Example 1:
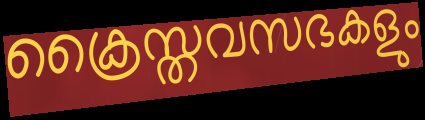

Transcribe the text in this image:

ക്രൈസ്തവസഭകളും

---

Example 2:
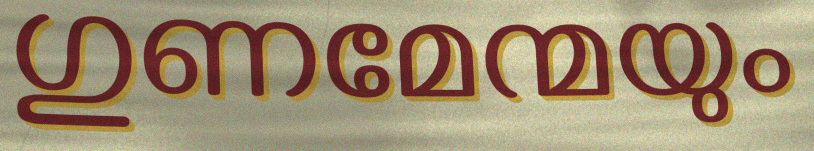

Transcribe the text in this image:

ഗുണമേന്മയും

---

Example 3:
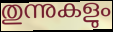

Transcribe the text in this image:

തുന്നുകളും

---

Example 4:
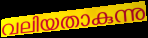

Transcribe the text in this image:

വലിയതാകുന്നു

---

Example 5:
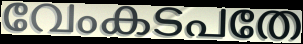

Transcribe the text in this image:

വേംകടപതേ